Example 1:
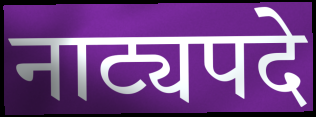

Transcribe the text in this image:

नाट्यपदे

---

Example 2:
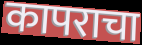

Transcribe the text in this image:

कापराचा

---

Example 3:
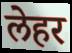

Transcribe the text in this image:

लेहर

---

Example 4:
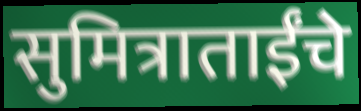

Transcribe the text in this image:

सुमित्राताईंचे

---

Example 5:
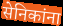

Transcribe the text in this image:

सेनिकांना